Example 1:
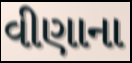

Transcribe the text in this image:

વીણાના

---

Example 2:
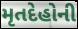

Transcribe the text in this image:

મૃતદેહોની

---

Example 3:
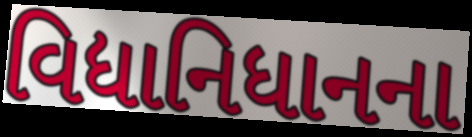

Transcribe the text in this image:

વિદ્યાનિધાનના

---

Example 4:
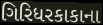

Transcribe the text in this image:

ગિરિધરકાકાના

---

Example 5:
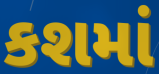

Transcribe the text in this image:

કશમાં